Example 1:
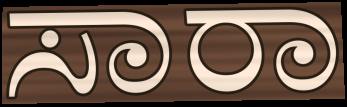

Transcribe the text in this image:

ಸಾರಾ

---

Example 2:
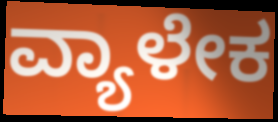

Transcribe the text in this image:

ವ್ಯಾಳೇಕ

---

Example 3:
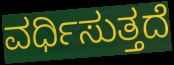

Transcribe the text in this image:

ವರ್ಧಿಸುತ್ತದೆ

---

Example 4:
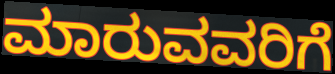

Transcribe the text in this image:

ಮಾರುವವರಿಗೆ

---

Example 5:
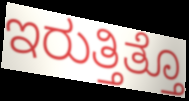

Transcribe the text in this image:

ಇರುತ್ತಿತ್ತೊ